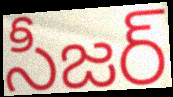
సీజర్